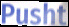
Pusht